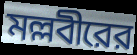
মল্লবীরের